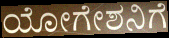
ಯೋಗೇಶನಿಗೆ